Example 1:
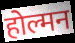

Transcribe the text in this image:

होल्मन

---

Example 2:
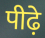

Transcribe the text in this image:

पीढ़े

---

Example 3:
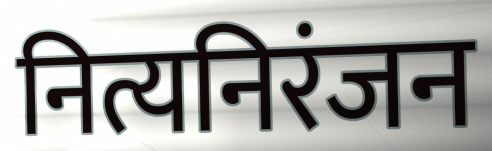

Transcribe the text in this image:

नित्यनिरंजन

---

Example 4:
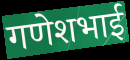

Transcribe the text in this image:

गणेशभाई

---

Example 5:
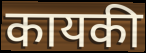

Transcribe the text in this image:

कायकी